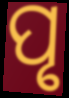
ପୃ